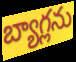
బ్యాగ్లను